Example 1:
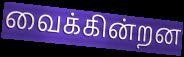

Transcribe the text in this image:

வைக்கின்றன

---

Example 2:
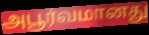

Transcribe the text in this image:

அபூர்வமானது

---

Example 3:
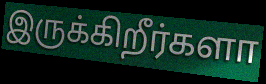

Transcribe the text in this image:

இருக்கிறீர்களா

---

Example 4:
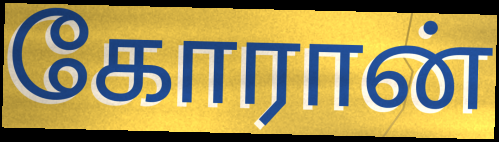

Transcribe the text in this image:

கோரான்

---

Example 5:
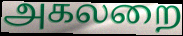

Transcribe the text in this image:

அகலறை